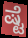
ಷ್ಟೆ